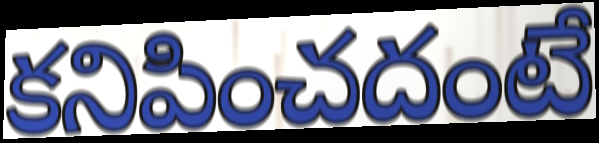
కనిపించదంటే